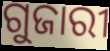
ଗୁଜାରୀ